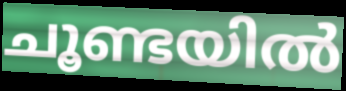
ചൂണ്ടയിൽ